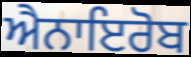
ਐਨਾਇਰੋਬ